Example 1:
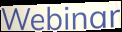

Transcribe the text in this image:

Webinar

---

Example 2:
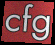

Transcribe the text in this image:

cfg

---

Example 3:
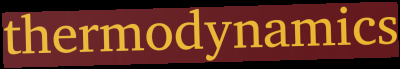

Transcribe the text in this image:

thermodynamics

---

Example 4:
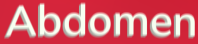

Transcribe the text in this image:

Abdomen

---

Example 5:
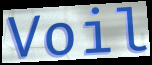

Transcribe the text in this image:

Voil